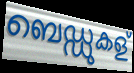
ബെഡ്ഡുകള്